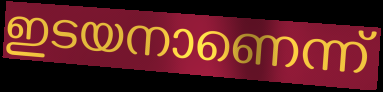
ഇടയനാണെന്ന്